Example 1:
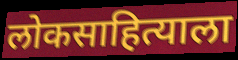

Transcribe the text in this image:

लोकसाहित्याला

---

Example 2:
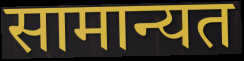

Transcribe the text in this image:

सामान्यत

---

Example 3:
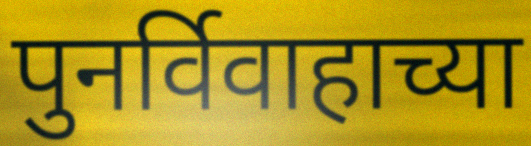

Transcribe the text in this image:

पुनर्विवाहाच्या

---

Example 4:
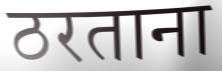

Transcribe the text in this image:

ठरताना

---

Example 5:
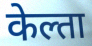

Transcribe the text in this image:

केल्ता